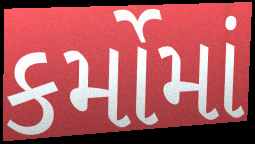
કર્મોમાં